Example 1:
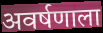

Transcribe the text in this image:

अवर्षणाला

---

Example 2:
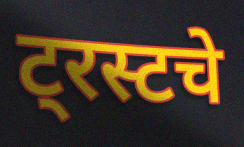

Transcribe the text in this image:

ट्रस्टचे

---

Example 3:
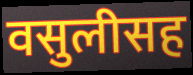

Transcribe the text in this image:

वसुलीसह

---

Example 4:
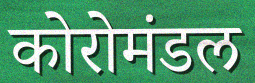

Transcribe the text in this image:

कोरोमंडल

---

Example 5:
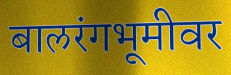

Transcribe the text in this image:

बालरंगभूमीवर